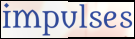
impulses